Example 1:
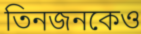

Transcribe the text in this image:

তিনজনকেও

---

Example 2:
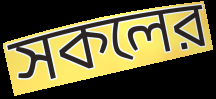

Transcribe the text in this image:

সকলের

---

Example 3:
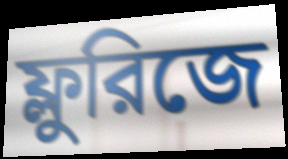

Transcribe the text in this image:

ফ্লুরিজে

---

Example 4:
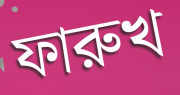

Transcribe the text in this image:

ফারুখ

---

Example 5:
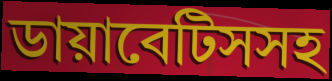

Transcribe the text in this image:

ডায়াবেটিসসহ